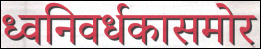
ध्वनिवर्धकासमोर